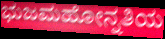
ಭುಜಮಹೋನ್ನತಿಯ